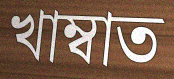
খাম্বাত